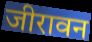
जीरावन